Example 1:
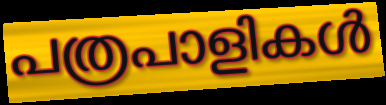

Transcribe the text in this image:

പത്രപാളികൾ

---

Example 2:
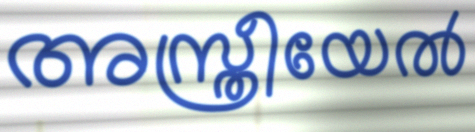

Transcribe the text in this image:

അസ്ത്രീയേൽ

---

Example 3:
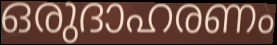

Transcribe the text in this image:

ഒരുദാഹരണം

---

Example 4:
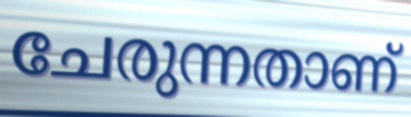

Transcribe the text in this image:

ചേരുന്നതാണ്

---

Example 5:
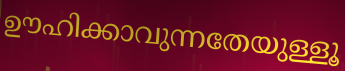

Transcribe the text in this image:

ഊഹിക്കാവുന്നതേയുള്ളൂ